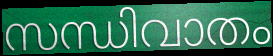
സന്ധിവാതം